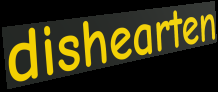
dishearten